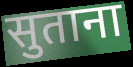
सुताना